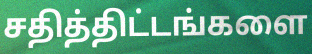
சதித்திட்டங்களை